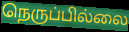
நெருப்பில்லை